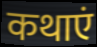
कथाएं